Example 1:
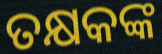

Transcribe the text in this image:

ତକ୍ଷକଙ୍କ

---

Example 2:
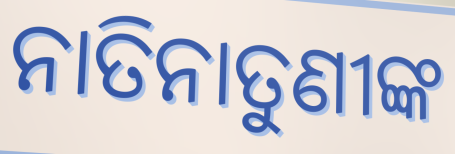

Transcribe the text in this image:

ନାତିନାତୁଣୀଙ୍କ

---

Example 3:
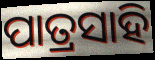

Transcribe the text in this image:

ପାତ୍ରସାହି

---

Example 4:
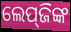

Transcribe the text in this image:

ଲେପ୍‌ଜିଙ୍କ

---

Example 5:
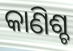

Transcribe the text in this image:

କାଣିଶ୍ଚ